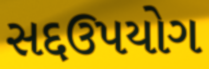
સદ્દઉપયોગ